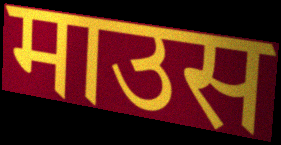
माउस